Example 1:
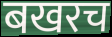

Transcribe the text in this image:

बखरच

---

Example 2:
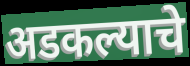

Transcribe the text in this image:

अडकल्याचे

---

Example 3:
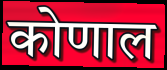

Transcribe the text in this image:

कोणाल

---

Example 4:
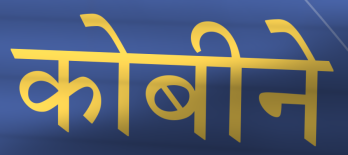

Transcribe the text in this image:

कोबीने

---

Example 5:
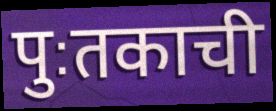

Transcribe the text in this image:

पुःतकाची